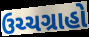
ઉચ્ચગ્રાહો